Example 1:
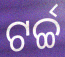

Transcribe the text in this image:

ଟର୍ଚ୍ଚ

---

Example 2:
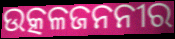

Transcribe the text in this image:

ଉତ୍କଳଜନନୀର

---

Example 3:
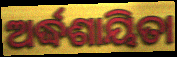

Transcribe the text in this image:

ଅର୍ଦ୍ଧଶାୟିତା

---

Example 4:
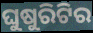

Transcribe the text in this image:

ଘୁଷୁରିଟିର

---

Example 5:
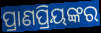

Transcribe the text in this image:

ପ୍ରାଣପ୍ରିୟଙ୍କର